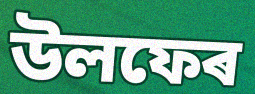
উলফেৰ